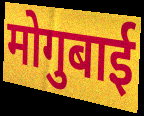
मोगुबाई